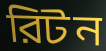
রিটন